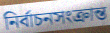
নির্বাচনসংক্রান্ত